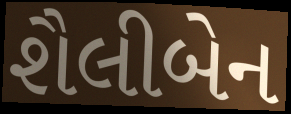
શૈલીબેન